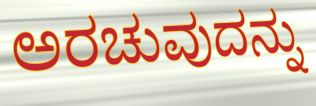
ಅರಚುವುದನ್ನು